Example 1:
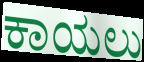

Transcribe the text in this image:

ಕಾಯಲು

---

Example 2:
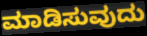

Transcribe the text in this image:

ಮಾಡಿಸುವುದು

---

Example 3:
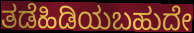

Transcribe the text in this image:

ತಡೆಹಿಡಿಯಬಹುದೇ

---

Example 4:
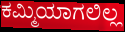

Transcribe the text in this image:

ಕಮ್ಮಿಯಾಗಲಿಲ್ಲ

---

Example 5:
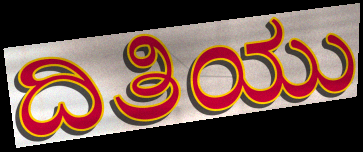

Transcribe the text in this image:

ದಿತಿಯು